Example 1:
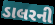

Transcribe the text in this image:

ડાલરની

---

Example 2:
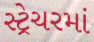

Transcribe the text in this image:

સ્ટ્રેચરમાં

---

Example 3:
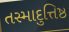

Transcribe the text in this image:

તસ્માદુત્તિષ્ઠ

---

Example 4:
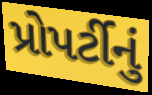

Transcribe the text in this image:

પ્રોપર્ટીનું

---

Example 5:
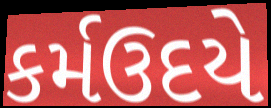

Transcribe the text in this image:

કર્મઉદયે